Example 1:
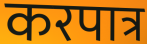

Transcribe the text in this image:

करपात्र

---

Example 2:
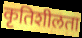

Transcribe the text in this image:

कृतिशीलता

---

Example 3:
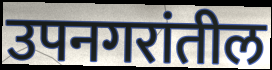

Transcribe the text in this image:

उपनगरांतील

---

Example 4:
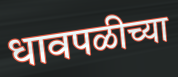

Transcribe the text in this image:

धावपळीच्या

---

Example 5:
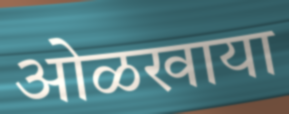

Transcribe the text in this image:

ओळखाया